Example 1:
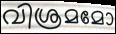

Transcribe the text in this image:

വിശ്രമമോ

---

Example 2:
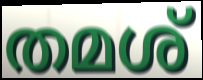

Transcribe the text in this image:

തമശ്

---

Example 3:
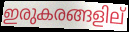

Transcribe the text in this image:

ഇരുകരങ്ങളില്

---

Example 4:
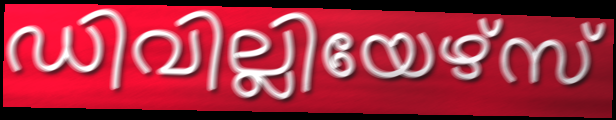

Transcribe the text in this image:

ഡിവില്ലിയേഴ്സ്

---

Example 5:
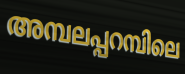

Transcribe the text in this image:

അമ്പലപ്പറമ്പിലെ